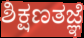
ಶಿಕ್ಷಣತಜ್ಞೆ